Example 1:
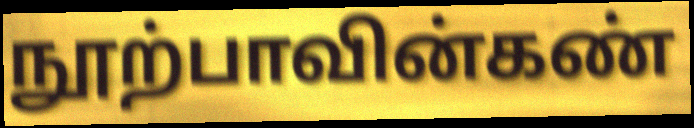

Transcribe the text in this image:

நூற்பாவின்கண்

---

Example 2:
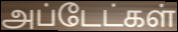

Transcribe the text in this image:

அப்டேட்கள்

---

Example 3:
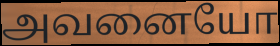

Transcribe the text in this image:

அவனையோ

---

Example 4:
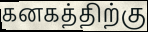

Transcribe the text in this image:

கனகத்திற்கு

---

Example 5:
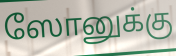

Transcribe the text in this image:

ஸோனுக்கு